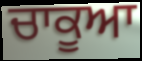
ਚਾਕੂਆ